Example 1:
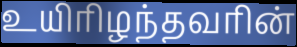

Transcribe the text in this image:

உயிரிழந்தவரின்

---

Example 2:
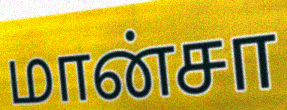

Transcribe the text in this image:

மான்சா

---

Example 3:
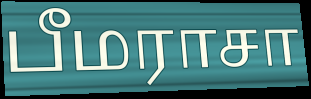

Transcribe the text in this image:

பீமராசா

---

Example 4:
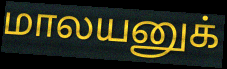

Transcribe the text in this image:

மாலயனுக்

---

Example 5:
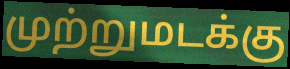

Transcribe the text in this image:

முற்றுமடக்கு